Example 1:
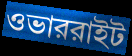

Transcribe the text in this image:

ওভাররাইট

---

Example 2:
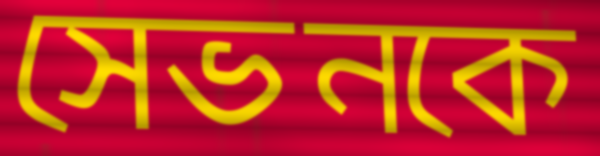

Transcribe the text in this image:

সেভনকে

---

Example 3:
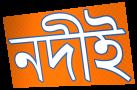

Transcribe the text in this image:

নদীই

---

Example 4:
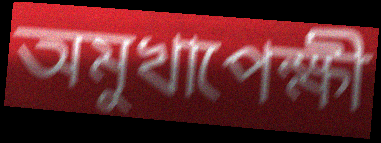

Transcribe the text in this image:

অমুখাপেক্ষী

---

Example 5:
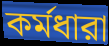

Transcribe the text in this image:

কর্মধারা